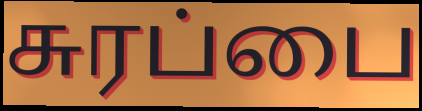
சுரப்பை